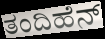
ತಂದಿಹೆನ್